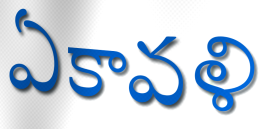
ఏకావళి